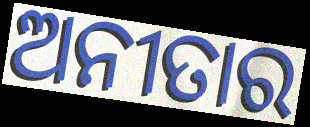
ଅନୀତାର